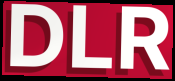
DLR